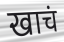
खाचं